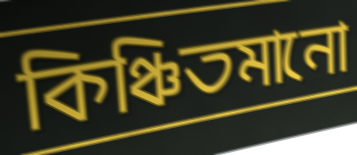
কিঞ্চিতমানো